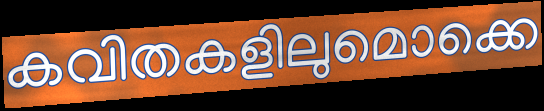
കവിതകളിലുമൊക്കെ